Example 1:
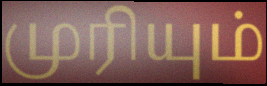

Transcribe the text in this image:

முரியும்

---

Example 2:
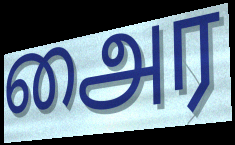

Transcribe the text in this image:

அைர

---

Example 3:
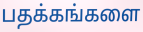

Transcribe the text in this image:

பதக்கங்களை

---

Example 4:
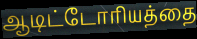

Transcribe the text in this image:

ஆடிட்டோரியத்தை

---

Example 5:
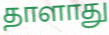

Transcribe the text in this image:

தாளாது